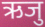
ऋजु